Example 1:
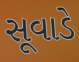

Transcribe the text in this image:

સૂવાડે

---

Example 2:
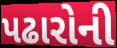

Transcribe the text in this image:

પઢારોની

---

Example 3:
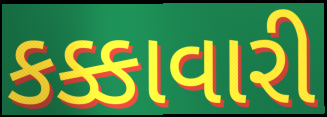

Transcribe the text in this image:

કક્કાવારી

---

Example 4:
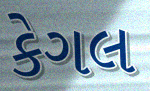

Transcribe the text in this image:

કેગલ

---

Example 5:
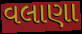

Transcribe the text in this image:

વલાણા